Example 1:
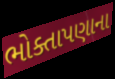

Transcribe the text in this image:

ભોક્તાપણાના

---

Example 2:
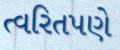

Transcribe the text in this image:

ત્વરિતપણે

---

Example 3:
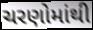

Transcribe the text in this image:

ચરણોમાંથી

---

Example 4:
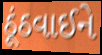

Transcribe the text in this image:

ઠૂંઠવાઈને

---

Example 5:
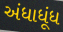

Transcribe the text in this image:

અંધાધૂંધ